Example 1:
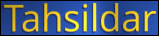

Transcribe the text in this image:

Tahsildar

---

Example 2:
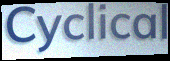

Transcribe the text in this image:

Cyclical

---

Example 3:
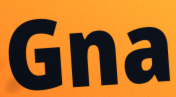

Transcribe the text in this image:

Gna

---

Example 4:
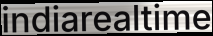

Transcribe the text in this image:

indiarealtime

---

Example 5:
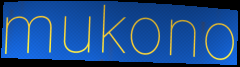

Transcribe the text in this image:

mukono